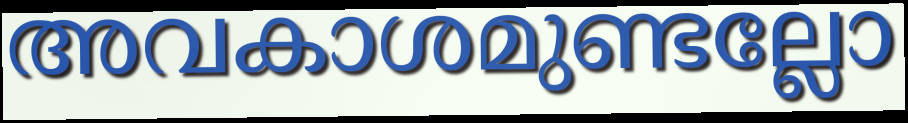
അവകാശമുണ്ടല്ലോ